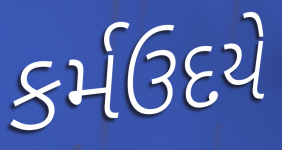
કર્મઉદયે